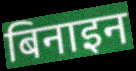
बिनाइन